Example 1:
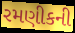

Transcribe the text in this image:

રમણીકની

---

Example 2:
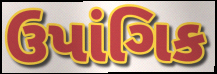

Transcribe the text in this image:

ઉપાંગિક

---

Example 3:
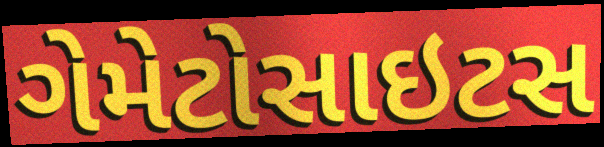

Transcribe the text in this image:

ગેમેટોસાઇટસ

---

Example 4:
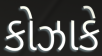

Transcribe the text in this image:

કોઝાકે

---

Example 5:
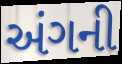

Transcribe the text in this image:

અંગની